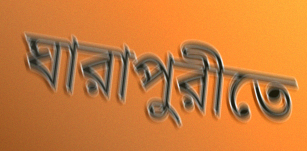
ঘারাপুরীতে